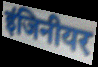
इंजिनीयर